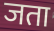
जता